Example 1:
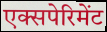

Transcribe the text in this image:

एक्सपेरिमेंट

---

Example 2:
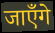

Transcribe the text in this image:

जाएँगे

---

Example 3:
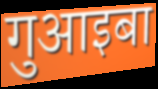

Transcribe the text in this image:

गुआइबा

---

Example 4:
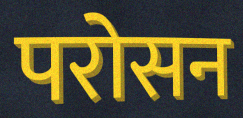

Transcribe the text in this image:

परोसन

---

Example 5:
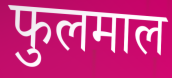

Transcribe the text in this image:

फुलमाल